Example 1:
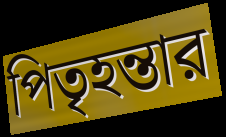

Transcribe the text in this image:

পিতৃহন্তার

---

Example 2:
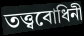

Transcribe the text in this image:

তত্ত্ববোধিনী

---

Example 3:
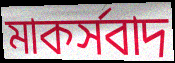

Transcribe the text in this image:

মাকর্সবাদ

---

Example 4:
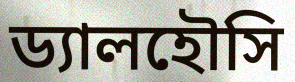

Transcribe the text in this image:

ড্যালহৌসি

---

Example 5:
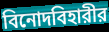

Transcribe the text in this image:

বিনোদবিহারীর